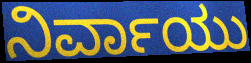
ನಿರ್ವಾಯು